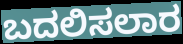
ಬದಲಿಸಲಾರ